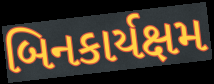
બિનકાર્યક્ષમ